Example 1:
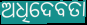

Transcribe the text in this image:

ଅଧିଦେବତା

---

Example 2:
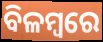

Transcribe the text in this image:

ବିଳମ୍ୱରେ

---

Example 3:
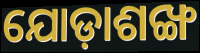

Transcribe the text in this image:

ଯୋଡ଼ାଶଙ୍ଖ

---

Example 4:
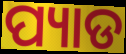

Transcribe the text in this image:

ପ୍ୟାଡ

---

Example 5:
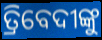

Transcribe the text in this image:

ତ୍ରିବେଦୀଙ୍କୁ